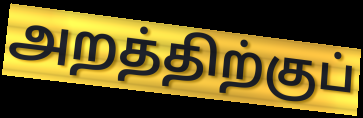
அறத்திற்குப்